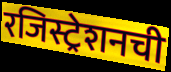
रजिस्ट्रेशनची